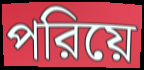
পরিয়ে